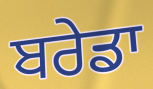
ਬਰੇਡਾ